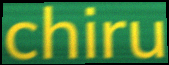
chiru